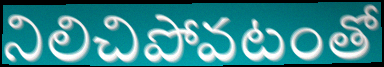
నిలిచిపోవటంతో